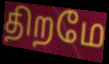
திறமே